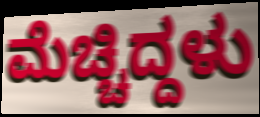
ಮೆಚ್ಚಿದ್ದಳು